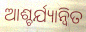
ଆଶ୍ଚର୍ଯ୍ୟାନ୍ୱିତ